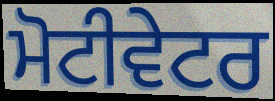
ਮੋਟੀਵੇਟਰ